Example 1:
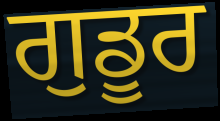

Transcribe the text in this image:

ਗੁਡੂਰ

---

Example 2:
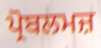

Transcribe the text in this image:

ਪ੍ਰੋਬਲਮਜ਼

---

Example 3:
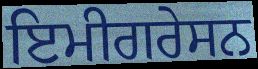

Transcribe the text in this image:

ਇਮੀਗਰੇਸਨ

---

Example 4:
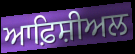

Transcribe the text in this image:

ਆਫ਼ਿਸ਼ੀਅਲ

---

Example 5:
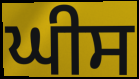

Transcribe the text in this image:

ਘੀਸ